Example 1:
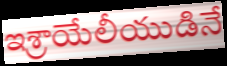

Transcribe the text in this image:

ఇశ్రాయేలీయుడినే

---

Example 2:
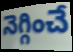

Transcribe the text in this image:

నెగ్గించే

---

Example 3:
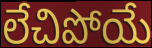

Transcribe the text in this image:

లేచిపోయే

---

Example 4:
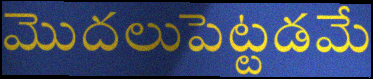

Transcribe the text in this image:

మొదలుపెట్టడమే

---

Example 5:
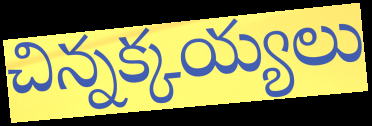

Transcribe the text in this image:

చిన్నక్కయ్యలు